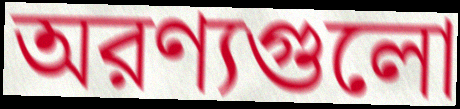
অরণ্যগুলো